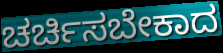
ಚರ್ಚಿಸಬೇಕಾದ